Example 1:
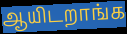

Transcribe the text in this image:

ஆயிடறாங்க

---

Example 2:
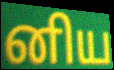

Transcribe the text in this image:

னிய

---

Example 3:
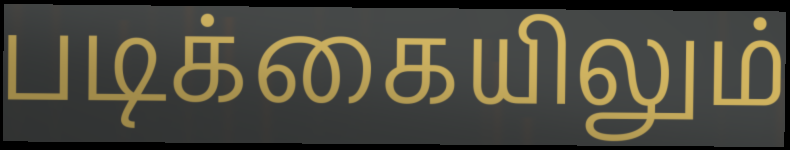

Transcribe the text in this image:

படிக்கையிலும்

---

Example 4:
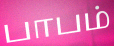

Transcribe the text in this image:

பாபம்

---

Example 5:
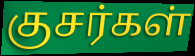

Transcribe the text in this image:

குசர்கள்